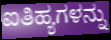
ಐತಿಹ್ಯಗಳನ್ನು